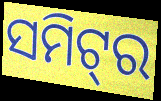
ସମିଟ୍‌ର